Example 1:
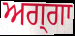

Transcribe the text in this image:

ਅਗ੍ਗਾ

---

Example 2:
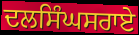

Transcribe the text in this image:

ਦਲਸਿੰਘਸਰਾਏ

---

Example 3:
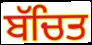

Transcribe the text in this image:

ਬੱਚਿਤ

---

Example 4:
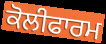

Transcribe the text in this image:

ਕੋਲੀਫਾਰਮ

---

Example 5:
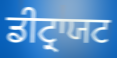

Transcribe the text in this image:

ਡੀਟ੍ਰਾਯਟ